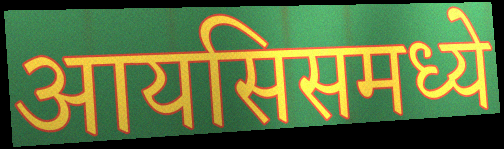
आयसिसमध्ये